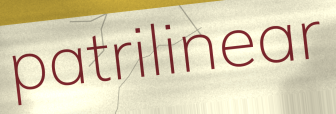
patrilinear